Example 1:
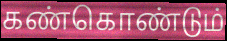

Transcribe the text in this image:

கண்கொண்டும்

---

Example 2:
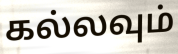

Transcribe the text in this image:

கல்லவும்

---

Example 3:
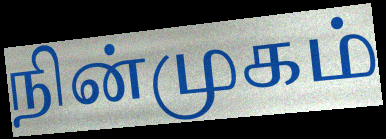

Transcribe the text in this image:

நின்முகம்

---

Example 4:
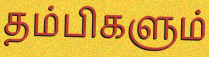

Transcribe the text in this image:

தம்பிகளும்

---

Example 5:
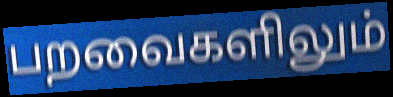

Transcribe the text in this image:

பறவைகளிலும்